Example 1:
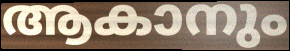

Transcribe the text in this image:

ആകാനും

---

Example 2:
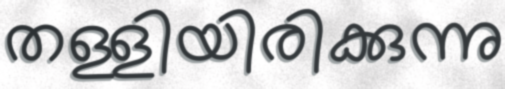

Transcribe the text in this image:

തള്ളിയിരിക്കുന്നു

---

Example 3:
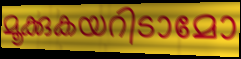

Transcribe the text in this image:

മൂക്കുകയറിടാമോ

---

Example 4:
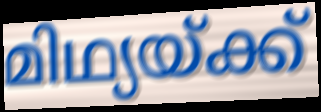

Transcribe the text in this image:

മിഥ്യയ്ക്ക്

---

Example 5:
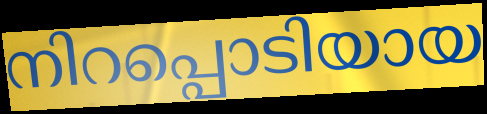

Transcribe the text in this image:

നിറപ്പൊടിയായ